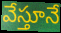
వేస్తూనే